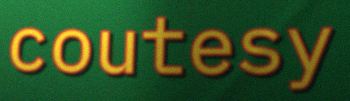
coutesy